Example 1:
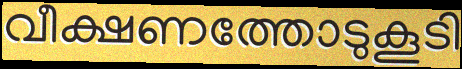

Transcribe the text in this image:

വീക്ഷണത്തോടുകൂടി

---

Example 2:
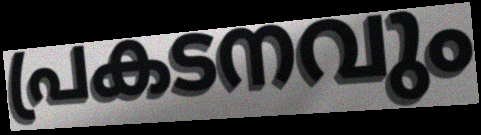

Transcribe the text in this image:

പ്രകടനവും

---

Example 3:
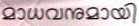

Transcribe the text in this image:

മാധവനുമായി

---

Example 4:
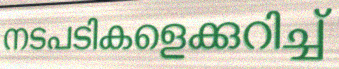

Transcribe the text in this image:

നടപടികളെക്കുറിച്ച്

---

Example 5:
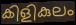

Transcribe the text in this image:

കിളികുലം